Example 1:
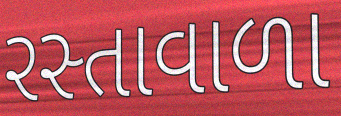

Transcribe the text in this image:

રસ્તાવાળા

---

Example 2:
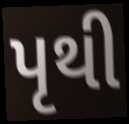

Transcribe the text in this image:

પૃથી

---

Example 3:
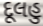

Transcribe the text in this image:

દૂલહુ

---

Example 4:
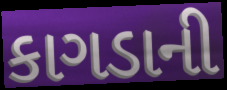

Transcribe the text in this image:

કાગડાની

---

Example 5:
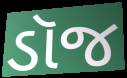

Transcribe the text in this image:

ડૉજ